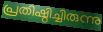
പ്രതിഷ്ഠിച്ചിരുന്നു